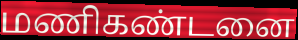
மணிகண்டனை